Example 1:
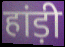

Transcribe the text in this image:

हांड़ी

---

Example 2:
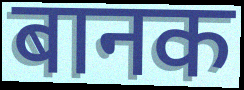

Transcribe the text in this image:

बानक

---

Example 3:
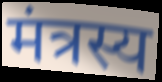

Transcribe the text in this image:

मंत्रस्य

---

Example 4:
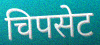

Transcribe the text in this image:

चिपसेट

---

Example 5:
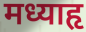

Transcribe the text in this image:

मध्याहृ